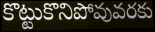
కొట్టుకొనిపోవువరకు